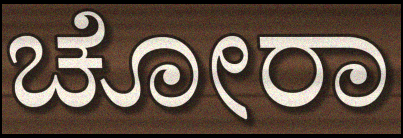
ಚೋರಾ